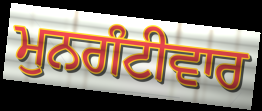
ਮੁਨਗੰਟੀਵਾਰ